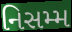
નિસમ્મ